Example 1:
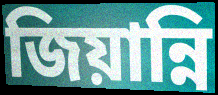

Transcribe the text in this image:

জিয়ান্নি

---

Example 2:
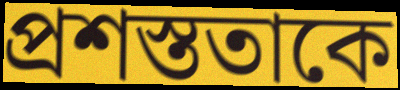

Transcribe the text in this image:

প্রশস্ততাকে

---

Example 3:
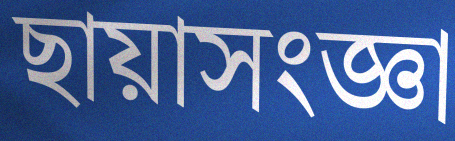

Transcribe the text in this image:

ছায়াসংজ্ঞা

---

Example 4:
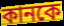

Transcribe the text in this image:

কানকে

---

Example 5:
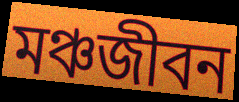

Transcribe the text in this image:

মঞ্চজীবন